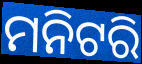
ମନିଟରି